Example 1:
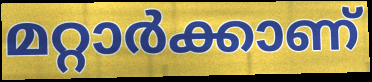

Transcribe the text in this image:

മറ്റാർക്കാണ്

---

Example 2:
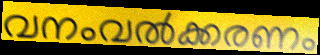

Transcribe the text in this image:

വനംവൽക്കരണം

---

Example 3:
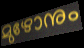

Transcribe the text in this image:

മുഴോനും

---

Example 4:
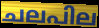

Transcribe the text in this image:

ചലപില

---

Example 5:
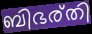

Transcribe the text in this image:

ബിഭര്തി